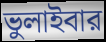
ভুলাইবার